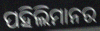
ପହିଲିମାନର